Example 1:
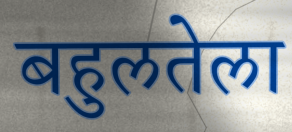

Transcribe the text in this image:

बहुलतेला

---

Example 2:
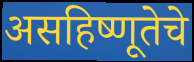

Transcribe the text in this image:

असहिष्णूतेचे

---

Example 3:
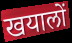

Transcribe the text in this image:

खयालों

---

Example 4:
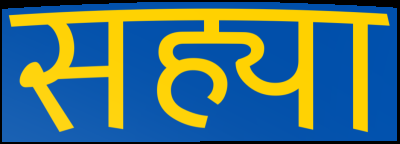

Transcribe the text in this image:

सह्या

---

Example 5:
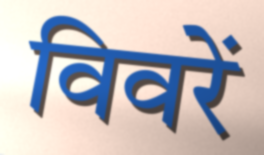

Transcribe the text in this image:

विवरें